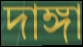
দাঙ্গা